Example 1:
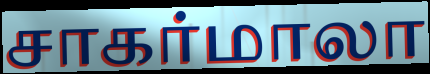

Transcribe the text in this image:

சாகர்மாலா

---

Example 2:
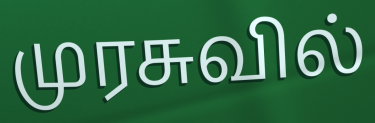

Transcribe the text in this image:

முரசுவில்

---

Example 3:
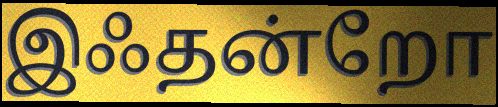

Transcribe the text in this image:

இஃதன்றோ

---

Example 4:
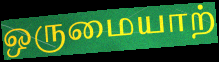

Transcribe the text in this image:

ஒருமையாற்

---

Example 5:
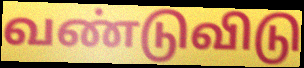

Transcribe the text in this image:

வண்டுவிடு